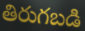
తిరుగబడి